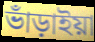
ভাঁড়াইয়া